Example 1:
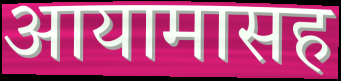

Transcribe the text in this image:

आयामासह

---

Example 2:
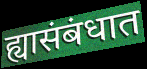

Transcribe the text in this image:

ह्यासंबंधात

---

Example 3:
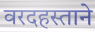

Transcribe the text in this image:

वरदहस्ताने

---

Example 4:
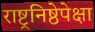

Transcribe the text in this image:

राष्ट्रनिष्ठेपेक्षा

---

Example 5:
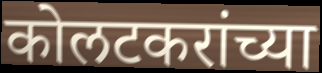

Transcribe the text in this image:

कोलटकरांच्या